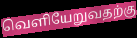
வெளியேறுவதற்கு